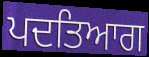
ਪਦਤਿਆਗ